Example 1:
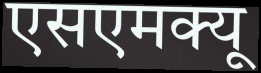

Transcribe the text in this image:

एसएमक्यू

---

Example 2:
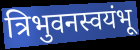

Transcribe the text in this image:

त्रिभुवनस्वयंभू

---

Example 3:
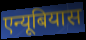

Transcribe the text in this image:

एन्यूबियास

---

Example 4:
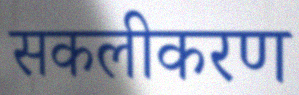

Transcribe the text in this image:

सकलीकरण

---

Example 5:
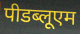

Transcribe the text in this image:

पीडब्लूएम